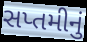
સપ્તમીનું